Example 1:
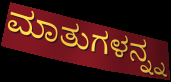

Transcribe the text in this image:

ಮಾತುಗಳನ್ನ್ನ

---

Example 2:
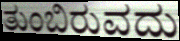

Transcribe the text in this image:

ತುಂಬಿರುವದು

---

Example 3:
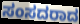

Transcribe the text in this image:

ಸಂಸದರಾದ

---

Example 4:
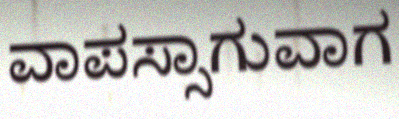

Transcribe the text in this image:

ವಾಪಸ್ಸಾಗುವಾಗ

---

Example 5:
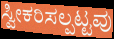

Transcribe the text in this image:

ಸ್ವೀಕರಿಸಲ್ಪಟ್ಟವು